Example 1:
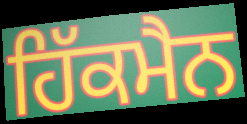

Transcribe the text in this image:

ਹਿੱਕਮੈਨ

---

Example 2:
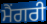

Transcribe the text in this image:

ਮੈਂਗਰੀ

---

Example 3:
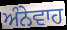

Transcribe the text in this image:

ਅੰਨੇਵਾਹ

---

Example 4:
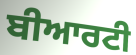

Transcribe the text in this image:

ਬੀਆਰਟੀ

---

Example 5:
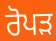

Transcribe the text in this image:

ਰੋਪਡ਼